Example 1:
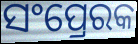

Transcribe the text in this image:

ସଂପ୍ରେରକ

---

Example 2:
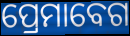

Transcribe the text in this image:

ପ୍ରେମାବେଗ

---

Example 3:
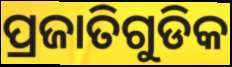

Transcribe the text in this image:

ପ୍ରଜାତିଗୁଡିକ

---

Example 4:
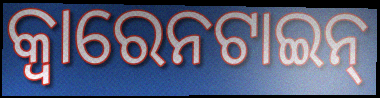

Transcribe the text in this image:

କ୍ୱାରେନଟାଇନ୍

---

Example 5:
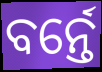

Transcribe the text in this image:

ବର୍ନ୍ତେ